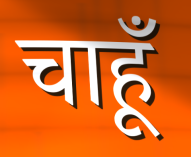
चाहूँ